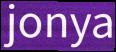
jonya